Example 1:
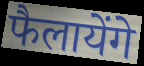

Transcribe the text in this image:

फैलायेंगे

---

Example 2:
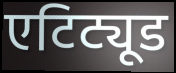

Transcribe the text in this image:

एटिट्यूड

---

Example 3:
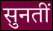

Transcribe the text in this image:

सुनतीं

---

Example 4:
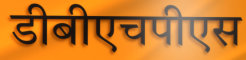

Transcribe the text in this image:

डीबीएचपीएस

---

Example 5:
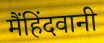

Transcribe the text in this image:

मैंहिंदवानी